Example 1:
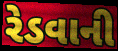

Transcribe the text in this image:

રેડવાની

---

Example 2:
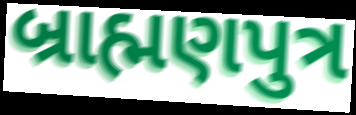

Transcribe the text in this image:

બ્રાહ્મણપુત્ર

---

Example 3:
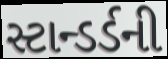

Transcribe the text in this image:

સ્ટાન્ડર્ડની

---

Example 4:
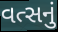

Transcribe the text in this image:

વત્સનું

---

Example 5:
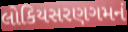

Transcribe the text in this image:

લોકિયસરણગમનં